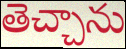
తెచ్చాను